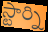
స్టార్ని